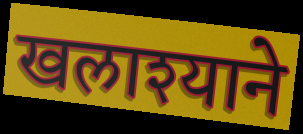
खलाश्याने